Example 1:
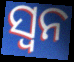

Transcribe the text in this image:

ସ୍ୱନ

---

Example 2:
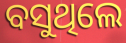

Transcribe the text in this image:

ବସୁଥିଲେ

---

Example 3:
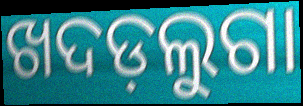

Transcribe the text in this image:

ଖଦଡ଼ଲୁଗା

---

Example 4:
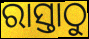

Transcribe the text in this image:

ରାସ୍ତାଠୁ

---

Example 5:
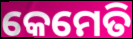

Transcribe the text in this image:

କେମେତି